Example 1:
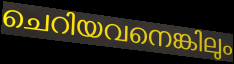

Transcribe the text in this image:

ചെറിയവനെങ്കിലും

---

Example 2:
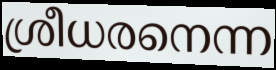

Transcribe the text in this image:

ശ്രീധരനെന്ന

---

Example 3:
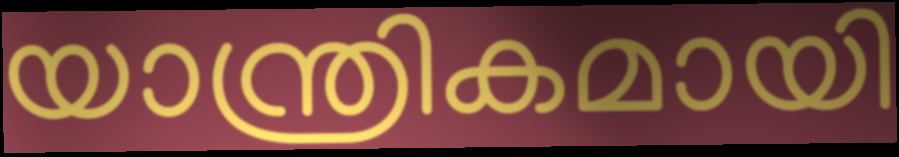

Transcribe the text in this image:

യാന്ത്രികമായി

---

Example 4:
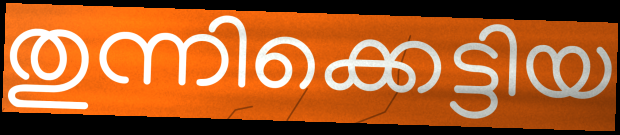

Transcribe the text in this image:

തുന്നിക്കെട്ടിയ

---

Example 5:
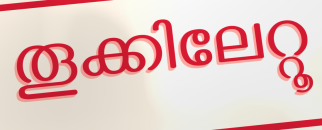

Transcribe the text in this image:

തൂക്കിലേറ്റൂ